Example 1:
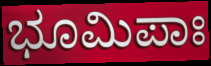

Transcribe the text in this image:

ಭೂಮಿಪಾಃ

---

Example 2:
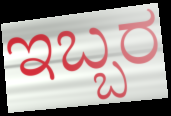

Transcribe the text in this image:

ಇಬ್ಬರ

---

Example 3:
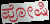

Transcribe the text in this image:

ಪೋಷಿ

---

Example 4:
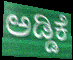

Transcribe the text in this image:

ಅಡ್ಡಿಕೆ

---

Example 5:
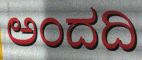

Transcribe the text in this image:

ಅಂದದಿ